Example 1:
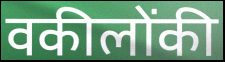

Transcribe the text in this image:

वकीलोंकी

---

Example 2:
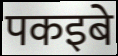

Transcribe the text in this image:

पकइबे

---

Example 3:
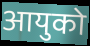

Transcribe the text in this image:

आयुको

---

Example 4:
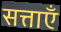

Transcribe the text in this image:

सत्ताएँ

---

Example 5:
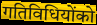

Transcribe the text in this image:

गतिविधियोंको